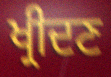
ਖ੍ਰੀਦਣ